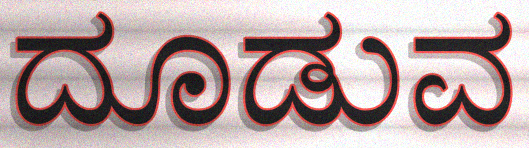
ದೂಡುವ